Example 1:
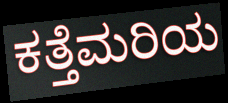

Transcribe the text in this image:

ಕತ್ತೆಮರಿಯ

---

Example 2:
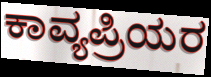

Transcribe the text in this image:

ಕಾವ್ಯಪ್ರಿಯರ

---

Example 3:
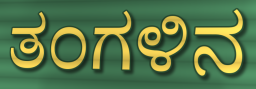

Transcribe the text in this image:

ತಂಗಳಿನ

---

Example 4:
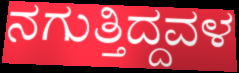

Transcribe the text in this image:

ನಗುತ್ತಿದ್ದವಳ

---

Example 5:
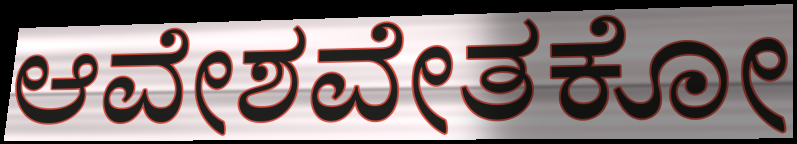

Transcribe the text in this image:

ಆವೇಶವೇತಕೋ